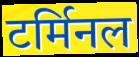
टर्मिनल